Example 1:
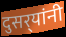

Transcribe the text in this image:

दुसर्‍यांनी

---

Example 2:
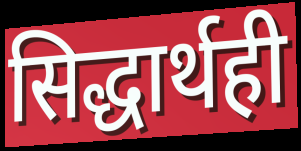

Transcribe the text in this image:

सिद्धार्थही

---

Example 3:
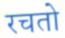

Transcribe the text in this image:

रचतो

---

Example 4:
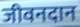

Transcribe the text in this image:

जीवनदान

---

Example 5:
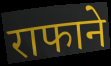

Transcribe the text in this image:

राफाने